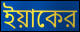
ইয়াকের